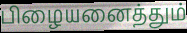
பிழையனைத்தும்